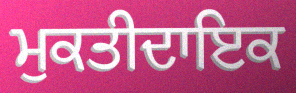
ਮੁਕਤੀਦਾਇਕ